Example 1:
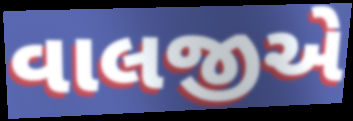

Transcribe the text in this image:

વાલજીએ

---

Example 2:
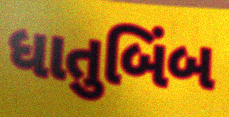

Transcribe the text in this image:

ધાતુબિંબ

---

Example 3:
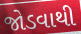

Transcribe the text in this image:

જોડવાથી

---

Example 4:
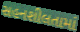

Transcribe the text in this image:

સહનશીલતામાં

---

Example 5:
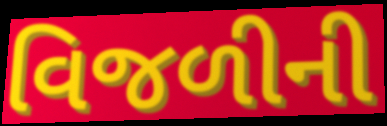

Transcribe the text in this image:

વિજળીની